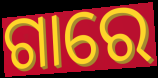
ଗାରେ